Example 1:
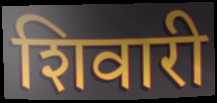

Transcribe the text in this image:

शिवारी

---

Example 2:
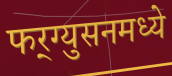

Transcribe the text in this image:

फर्ग्युसनमध्ये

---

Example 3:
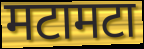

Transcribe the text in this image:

मटामटा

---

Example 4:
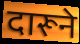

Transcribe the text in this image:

दारूने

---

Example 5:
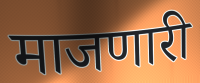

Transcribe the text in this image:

माजणारी